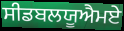
ਸੀਡਬਲਯੂਐਮਏ